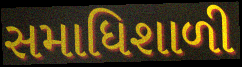
સમાધિશાળી